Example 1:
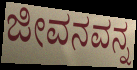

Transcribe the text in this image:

ಜೀವನವನ್ನ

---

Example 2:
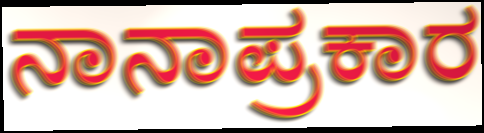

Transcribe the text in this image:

ನಾನಾಪ್ರಕಾರ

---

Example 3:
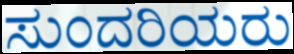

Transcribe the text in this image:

ಸುಂದರಿಯರು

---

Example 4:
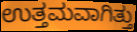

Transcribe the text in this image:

ಉತ್ತಮವಾಗಿತ್ತು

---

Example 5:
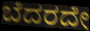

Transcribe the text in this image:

ಬೆದರದೇ